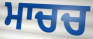
ਮਾਚਚ